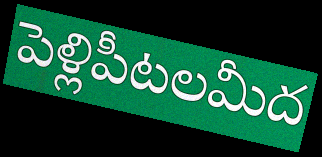
పెళ్లిపీటలమీద